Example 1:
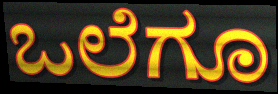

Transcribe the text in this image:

ಒಲೆಗೂ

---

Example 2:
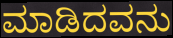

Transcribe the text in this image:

ಮಾಡಿದವನು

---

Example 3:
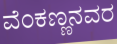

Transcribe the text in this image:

ವೆಂಕಣ್ಣನವರ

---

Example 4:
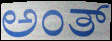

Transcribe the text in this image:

ಅಂತ್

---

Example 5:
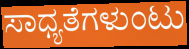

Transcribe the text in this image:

ಸಾಧ್ಯತೆಗಳುಂಟು